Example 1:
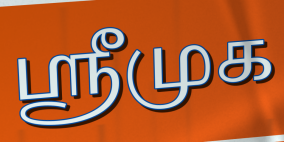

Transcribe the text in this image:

ஸ்ரீமுக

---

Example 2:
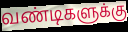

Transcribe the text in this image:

வண்டிகளுக்கு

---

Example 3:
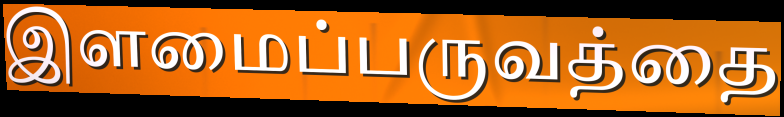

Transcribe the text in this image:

இளமைப்பருவத்தை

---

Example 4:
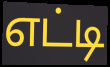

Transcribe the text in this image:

எட்டி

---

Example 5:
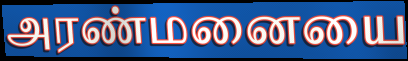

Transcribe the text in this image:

அரண்மனையை